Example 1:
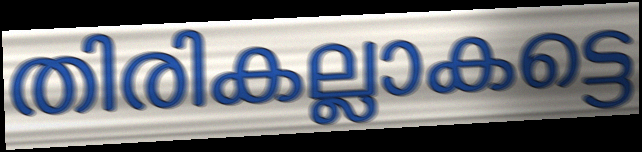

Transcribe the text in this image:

തിരികല്ലാകട്ടെ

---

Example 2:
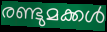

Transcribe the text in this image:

രണ്ടുമക്കൾ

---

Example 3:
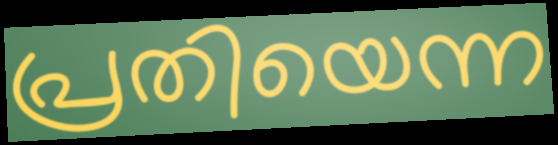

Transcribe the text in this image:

പ്രതിയെന്ന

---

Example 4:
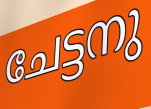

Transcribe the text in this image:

ചേട്ടനു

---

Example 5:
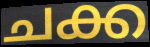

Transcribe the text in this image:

ചക്ക